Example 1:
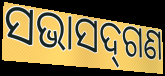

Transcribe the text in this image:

ସଭାସଦ୍‌ଗଣ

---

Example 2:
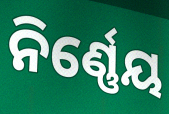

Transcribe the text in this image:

ନିର୍ଣ୍ଣେୟ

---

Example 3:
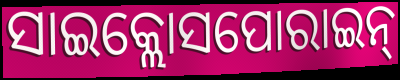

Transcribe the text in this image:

ସାଇକ୍ଲୋସପୋରାଇନ୍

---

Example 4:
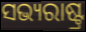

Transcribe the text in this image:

ସଭ୍ୟରାଷ୍ଟ୍ର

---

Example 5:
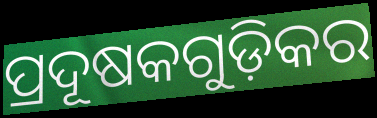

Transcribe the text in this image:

ପ୍ରଦୂଷକଗୁଡ଼ିକର